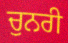
ਚੁਨਰੀ